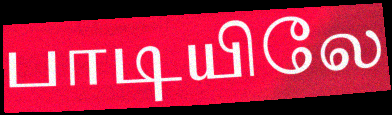
பாடியிலே